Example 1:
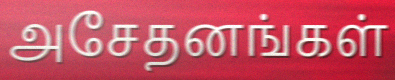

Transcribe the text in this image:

அசேதனங்கள்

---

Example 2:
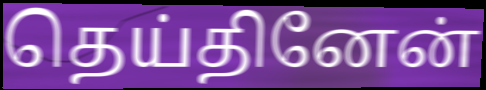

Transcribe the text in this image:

தெய்தினேன்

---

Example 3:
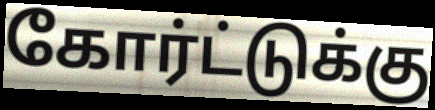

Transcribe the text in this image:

கோர்ட்டுக்கு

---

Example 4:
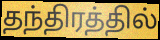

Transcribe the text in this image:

தந்திரத்தில்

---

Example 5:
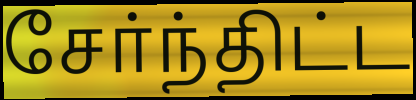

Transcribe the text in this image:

சேர்ந்திட்ட